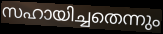
സഹായിച്ചതെന്നും